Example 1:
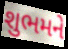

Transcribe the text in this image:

શુભમને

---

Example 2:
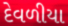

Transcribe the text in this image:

દેવળીયા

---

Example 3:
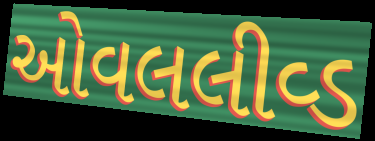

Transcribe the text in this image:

ઓવલલીવ્ડ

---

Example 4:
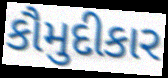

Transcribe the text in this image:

કૌમુદીકાર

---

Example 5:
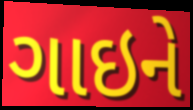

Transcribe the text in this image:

ગાઇને